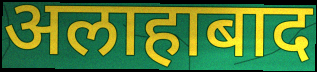
अलाहाबाद